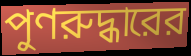
পুণরুদ্ধারের